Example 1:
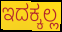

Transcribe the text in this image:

ಇದಕ್ಕಲ್ಲ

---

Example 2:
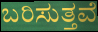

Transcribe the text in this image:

ಬರಿಸುತ್ತವೆ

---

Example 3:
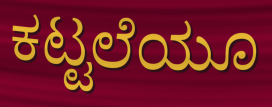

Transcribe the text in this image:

ಕಟ್ಟಲೆಯೂ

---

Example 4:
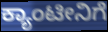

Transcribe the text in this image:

ಕ್ಯಾಂಟೀನಿಗೆ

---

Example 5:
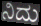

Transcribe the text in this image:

ನಿದು